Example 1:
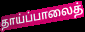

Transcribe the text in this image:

தாய்ப்பாலைத்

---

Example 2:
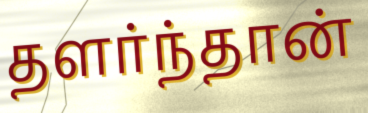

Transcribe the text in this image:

தளர்ந்தான்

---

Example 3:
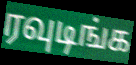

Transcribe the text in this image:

ரவுடிங்க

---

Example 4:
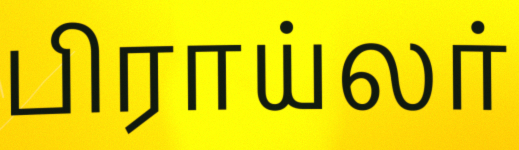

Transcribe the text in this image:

பிராய்லர்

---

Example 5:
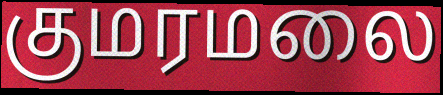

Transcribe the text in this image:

குமரமலை